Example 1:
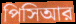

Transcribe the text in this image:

পিসিআর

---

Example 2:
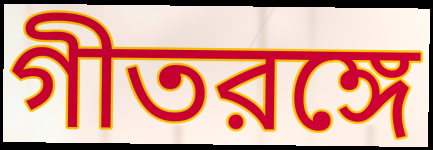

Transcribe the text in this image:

গীতরঙ্গে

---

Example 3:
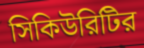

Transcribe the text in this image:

সিকিউরিটির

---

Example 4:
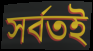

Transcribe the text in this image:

সর্বতই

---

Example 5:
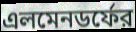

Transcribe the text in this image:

এলমেনডর্ফের